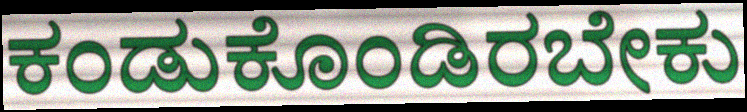
ಕಂಡುಕೊಂಡಿರಬೇಕು